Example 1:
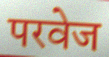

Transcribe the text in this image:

परवेज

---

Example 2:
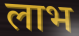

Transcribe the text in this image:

लाभ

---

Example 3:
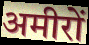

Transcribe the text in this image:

अमीरों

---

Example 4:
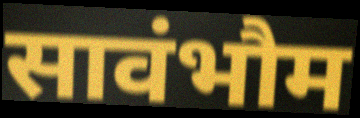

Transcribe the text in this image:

सावंभौम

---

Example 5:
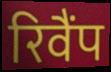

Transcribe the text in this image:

रिवैंप